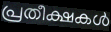
പ്രതീക്ഷകൾ